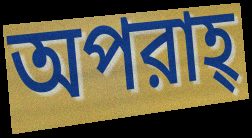
অপরাহ্